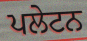
ਪਲੇਟਨ